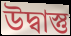
উদ্বাস্তু